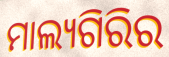
ମାଲ୍ୟଗିରିର